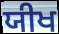
ਯੀਖ